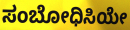
ಸಂಬೋಧಿಸಿಯೇ